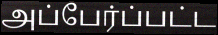
அப்பேர்ப்பட்ட